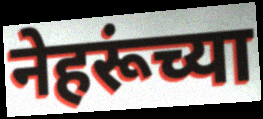
नेहरूंच्या